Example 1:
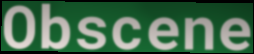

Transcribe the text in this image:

Obscene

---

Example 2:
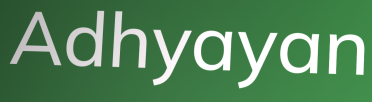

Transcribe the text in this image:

Adhyayan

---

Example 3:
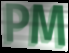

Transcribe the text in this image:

PM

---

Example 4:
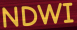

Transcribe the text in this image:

NDWI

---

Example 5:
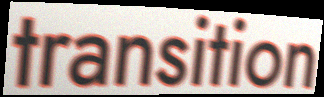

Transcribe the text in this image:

transition